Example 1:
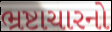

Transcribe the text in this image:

ભ્રષ્ટાચારનો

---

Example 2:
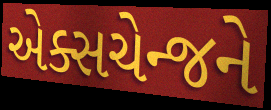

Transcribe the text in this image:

એક્સચેન્જને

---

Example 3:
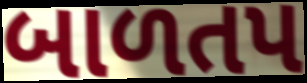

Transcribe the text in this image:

બાળતપ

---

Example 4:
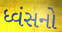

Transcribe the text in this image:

ધ્વંસનો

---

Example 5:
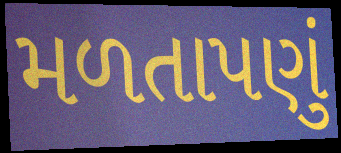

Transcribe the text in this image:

મળતાપણું